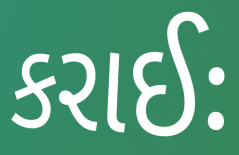
કરાઈઃ